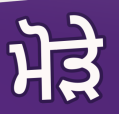
ਮੋੜੇ